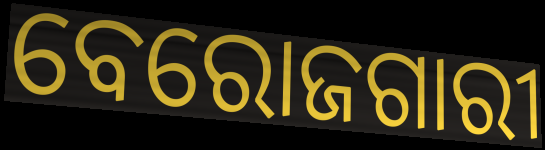
ବେରୋଜଗାରୀ